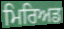
ਮਿਰਿਅਡ